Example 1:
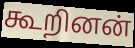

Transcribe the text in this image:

கூறினன்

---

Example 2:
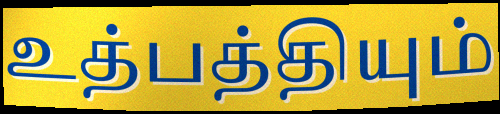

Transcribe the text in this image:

உத்பத்தியும்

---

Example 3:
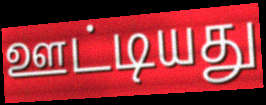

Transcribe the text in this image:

ஊட்டியது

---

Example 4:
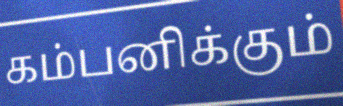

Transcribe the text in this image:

கம்பனிக்கும்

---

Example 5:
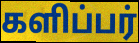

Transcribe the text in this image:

களிப்பர்